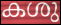
കശു